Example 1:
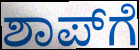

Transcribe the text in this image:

ಶಾಪ್‌ಗೆ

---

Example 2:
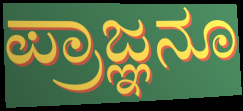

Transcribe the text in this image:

ಪ್ರಾಜ್ಞನೂ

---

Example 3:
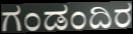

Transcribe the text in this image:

ಗಂಡಂದಿರ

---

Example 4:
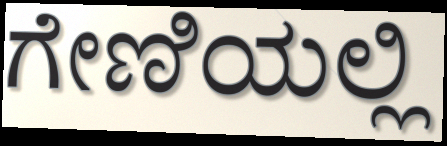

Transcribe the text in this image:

ಗೇಣಿಯಲ್ಲಿ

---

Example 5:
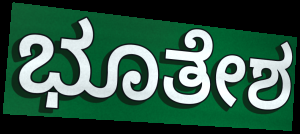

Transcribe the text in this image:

ಭೂತೇಶ